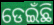
ଡେଇଁଛି